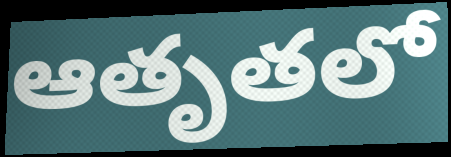
ఆతృతలో